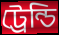
ট্রেন্ডি